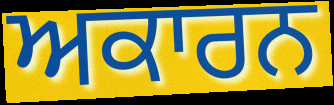
ਅਕਾਰਨ